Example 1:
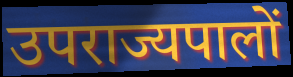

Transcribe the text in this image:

उपराज्यपालों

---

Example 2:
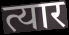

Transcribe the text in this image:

त्यार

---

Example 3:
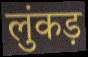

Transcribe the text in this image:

लुंकड़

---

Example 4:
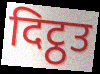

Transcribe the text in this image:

दिट्ठउ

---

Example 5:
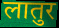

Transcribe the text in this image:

लातुर